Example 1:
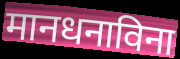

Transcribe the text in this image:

मानधनाविना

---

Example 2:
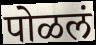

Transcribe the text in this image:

पोळलं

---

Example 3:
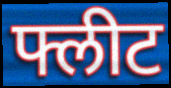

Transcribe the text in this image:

फ्लीट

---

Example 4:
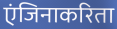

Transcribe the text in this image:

एंजिनाकरिता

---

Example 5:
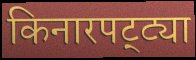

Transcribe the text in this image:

किनारपट्ट्या